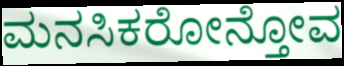
ಮನಸಿಕರೋನ್ತೋವ